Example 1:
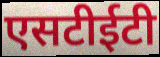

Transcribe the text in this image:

एसटीईटी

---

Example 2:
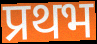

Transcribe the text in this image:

प्रथभ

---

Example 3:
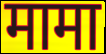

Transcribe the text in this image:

मामा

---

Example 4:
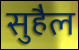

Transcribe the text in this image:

सुहैल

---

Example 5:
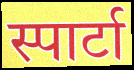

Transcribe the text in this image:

स्पार्टा